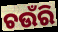
ଚଉଁରି